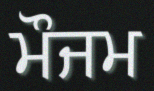
ਮੌਜਮ